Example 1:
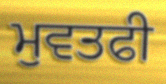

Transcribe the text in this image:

ਮੁਵਤਫੀ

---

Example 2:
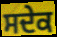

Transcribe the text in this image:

ਸਦੇਕ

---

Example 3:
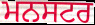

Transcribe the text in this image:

ਮਨਸਟਰ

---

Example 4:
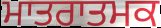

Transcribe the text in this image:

ਮਾਤਰਾਤਮਕ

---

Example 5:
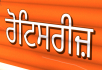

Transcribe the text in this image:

ਰੋਟਿਸਰੀਜ਼